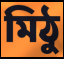
মিঠু